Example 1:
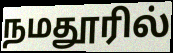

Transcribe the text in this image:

நமதூரில்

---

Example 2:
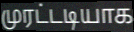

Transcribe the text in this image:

முரட்டடியாக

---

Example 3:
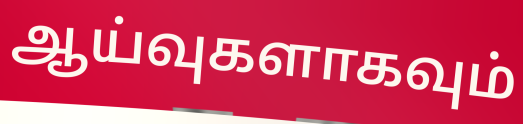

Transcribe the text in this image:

ஆய்வுகளாகவும்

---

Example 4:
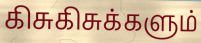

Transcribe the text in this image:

கிசுகிசுக்களும்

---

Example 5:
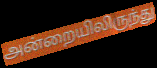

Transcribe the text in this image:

அன்றையிலிருந்து